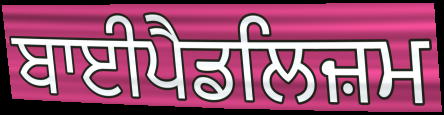
ਬਾਈਪੈਡਲਿਜ਼ਮ